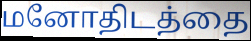
மனோதிடத்தை